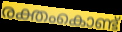
രക്തംകൊണ്ട്